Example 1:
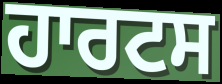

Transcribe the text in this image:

ਹਾਰਟਸ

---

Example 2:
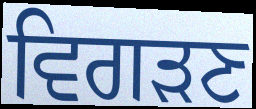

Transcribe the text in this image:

ਵਿਗੜਣ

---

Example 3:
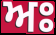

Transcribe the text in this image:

ਅਃ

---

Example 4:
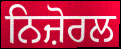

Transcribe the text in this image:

ਨਿਜ਼ੋਰਲ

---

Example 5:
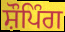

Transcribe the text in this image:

ਸ਼ੌਪਿੰਗ